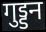
गुड्डन